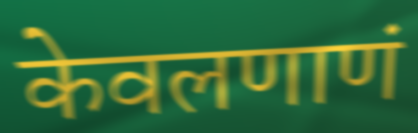
केवलणाणं